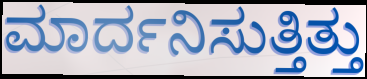
ಮಾರ್ದನಿಸುತ್ತಿತ್ತು